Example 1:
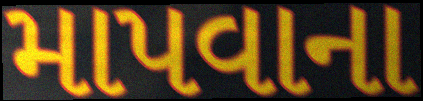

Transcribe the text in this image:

માપવાના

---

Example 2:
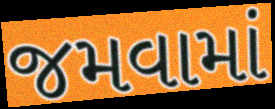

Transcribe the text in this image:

જમવામાં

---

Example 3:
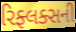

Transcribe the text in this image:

રિફ્લક્સની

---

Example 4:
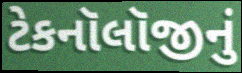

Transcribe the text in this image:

ટેકનૉલૉજીનું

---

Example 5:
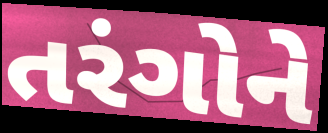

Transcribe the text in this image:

તરંગોને